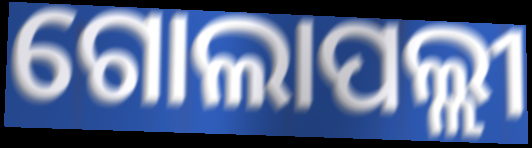
ଗୋଲାପଲ୍ଲୀ